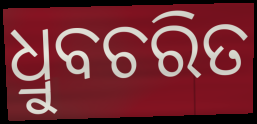
ଧ୍ରୁବଚରିତ